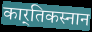
कार्तिकस्नान